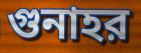
গুনাহর